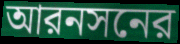
আরনসনের